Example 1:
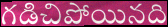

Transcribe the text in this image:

గడిచిపోయినది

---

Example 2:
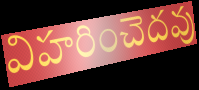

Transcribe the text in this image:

విహరించెదవు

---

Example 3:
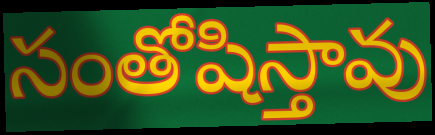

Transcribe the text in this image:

సంతోషిస్తావు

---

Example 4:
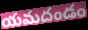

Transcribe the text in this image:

యమదండం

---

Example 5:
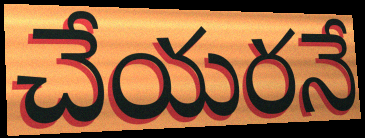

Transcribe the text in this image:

చేయరనే